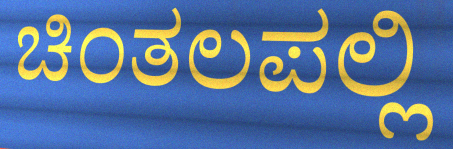
ಚಿಂತಲಪಲ್ಲಿ